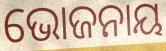
ଭୋଜନାୟ